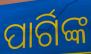
ପାର୍ଗିଙ୍କ